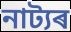
নাট্যৰ